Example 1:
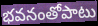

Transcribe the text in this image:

భవనంతోపాటు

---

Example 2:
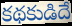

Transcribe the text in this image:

కథకుడిదే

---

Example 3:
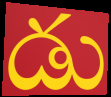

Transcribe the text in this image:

డు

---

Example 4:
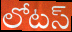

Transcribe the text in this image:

లోటస్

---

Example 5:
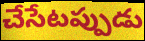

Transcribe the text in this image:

చేసేటప్పుడు